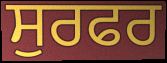
ਸੁਰਫਰ